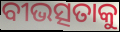
ବୀଭତ୍ସତାକୁ